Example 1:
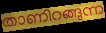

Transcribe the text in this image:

താണിറങ്ങുന്ന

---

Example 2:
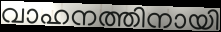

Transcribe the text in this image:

വാഹനത്തിനായി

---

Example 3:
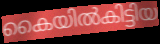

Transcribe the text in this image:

കൈയിൽകിട്ടിയ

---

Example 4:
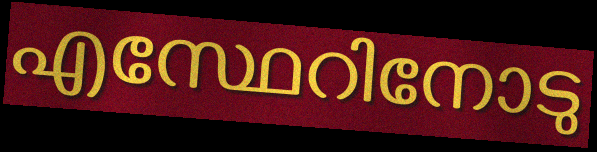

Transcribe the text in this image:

എസ്ഥേറിനോടു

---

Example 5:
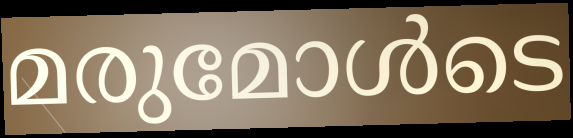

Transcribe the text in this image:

മരുമോൾടെ